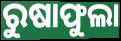
ରୁଷାଫୁଲା